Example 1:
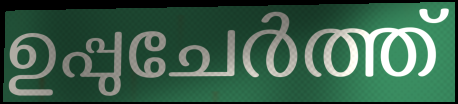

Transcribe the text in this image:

ഉപ്പുചേർത്ത്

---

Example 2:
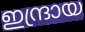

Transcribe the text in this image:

ഇന്ദ്രായ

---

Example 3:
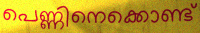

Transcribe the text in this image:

പെണ്ണിനെക്കൊണ്ട്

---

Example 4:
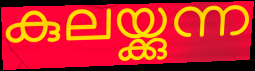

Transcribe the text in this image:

കുലയ്ക്കുന്ന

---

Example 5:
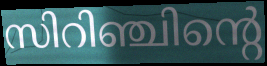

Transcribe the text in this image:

സിറിഞ്ചിന്റെ